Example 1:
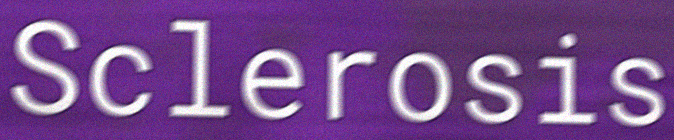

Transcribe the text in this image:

Sclerosis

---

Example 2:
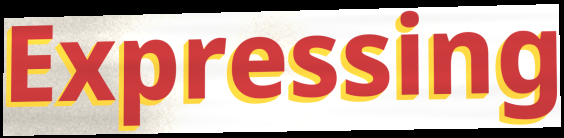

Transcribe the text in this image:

Expressing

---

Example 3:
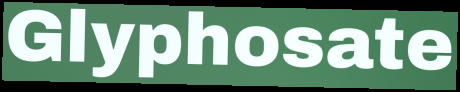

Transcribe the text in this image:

Glyphosate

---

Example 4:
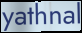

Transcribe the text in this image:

yathnal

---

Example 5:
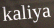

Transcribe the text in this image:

kaliya